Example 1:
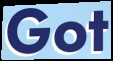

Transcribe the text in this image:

Got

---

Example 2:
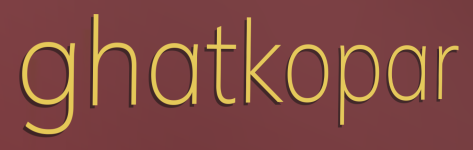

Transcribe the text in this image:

ghatkopar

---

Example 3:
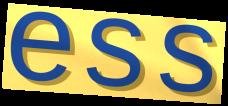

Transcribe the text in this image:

ess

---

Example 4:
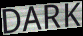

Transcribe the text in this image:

DARK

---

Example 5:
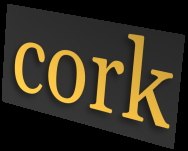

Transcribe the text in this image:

cork